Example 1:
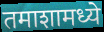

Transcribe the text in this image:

तमाशामध्ये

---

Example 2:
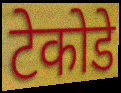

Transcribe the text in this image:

टेकोडे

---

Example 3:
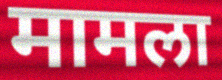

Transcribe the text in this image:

मामला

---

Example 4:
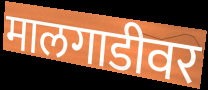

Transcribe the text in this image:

मालगाडीवर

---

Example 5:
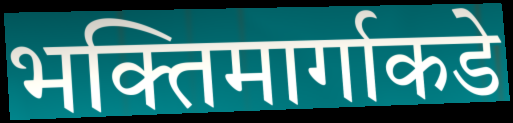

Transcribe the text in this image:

भक्तिमार्गाकडे